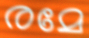
രമേ